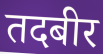
तदबीर